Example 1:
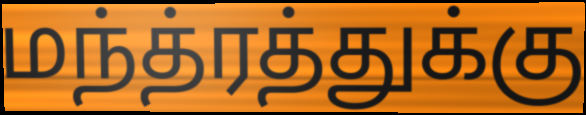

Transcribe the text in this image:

மந்த்ரத்துக்கு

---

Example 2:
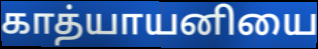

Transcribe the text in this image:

காத்யாயனியை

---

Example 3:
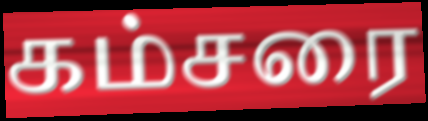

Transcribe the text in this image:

கம்சரை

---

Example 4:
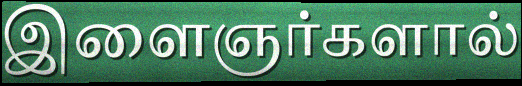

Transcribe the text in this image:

இளைஞர்களால்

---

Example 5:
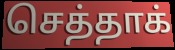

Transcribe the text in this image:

செத்தாக்